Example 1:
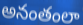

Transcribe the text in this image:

అనంతంలా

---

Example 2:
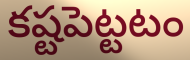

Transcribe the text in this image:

కష్టపెట్టటం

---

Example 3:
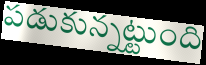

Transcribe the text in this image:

పడుకున్నట్టుంది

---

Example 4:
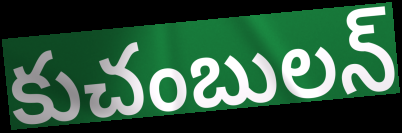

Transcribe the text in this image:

కుచంబులన్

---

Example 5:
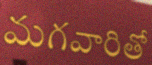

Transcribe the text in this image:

మగవారితో